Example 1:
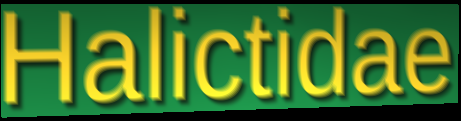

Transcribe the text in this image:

Halictidae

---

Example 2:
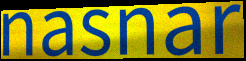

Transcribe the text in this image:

nasnar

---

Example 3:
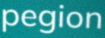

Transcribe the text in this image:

pegion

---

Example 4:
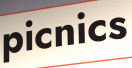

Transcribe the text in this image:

picnics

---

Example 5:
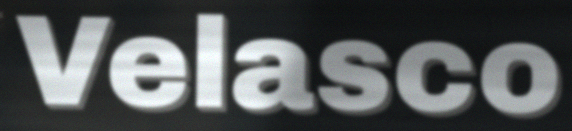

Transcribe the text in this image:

Velasco